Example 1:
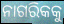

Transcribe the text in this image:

ନାଗରିକକୁ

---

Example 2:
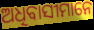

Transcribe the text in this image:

ଅଧିବାସୀମାନେ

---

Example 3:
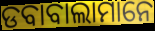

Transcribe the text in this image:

ଡବାବାଲାମାନେ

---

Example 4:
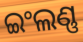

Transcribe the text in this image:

ଇଂଲଣ୍ଣ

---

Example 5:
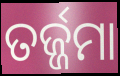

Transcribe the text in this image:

ତର୍ଜ୍ଜମା